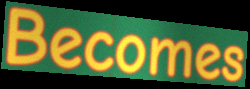
Becomes